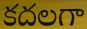
కదలగా